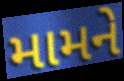
મામને